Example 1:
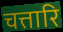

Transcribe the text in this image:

चत्तारि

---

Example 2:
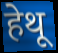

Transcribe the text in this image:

हेथू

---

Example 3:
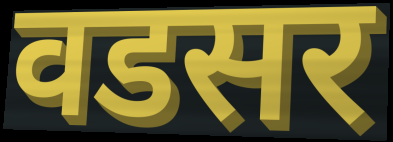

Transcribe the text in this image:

वडसर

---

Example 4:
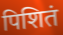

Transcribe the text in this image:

पिशितं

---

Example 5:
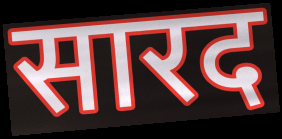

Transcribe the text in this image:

सारद